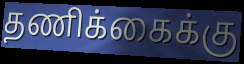
தணிக்கைக்கு